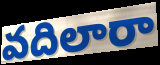
వదిలారా